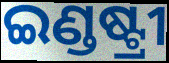
ଇଣ୍ଡଷ୍ଟ୍ରୀ